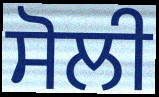
ਸੋਲੀ